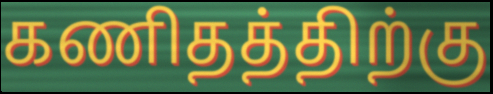
கணிதத்திற்கு